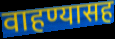
वाहण्यासह